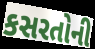
કસરતોની